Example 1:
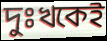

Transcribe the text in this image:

দুঃখকেই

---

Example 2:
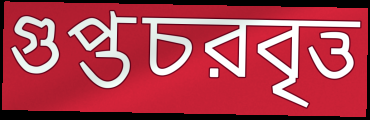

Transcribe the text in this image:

গুপ্তচরবৃত্ত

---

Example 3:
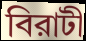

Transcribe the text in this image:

বিরাটী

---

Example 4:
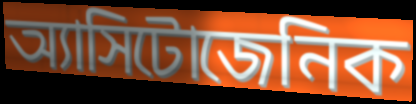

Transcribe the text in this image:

অ্যাসিটোজেনিক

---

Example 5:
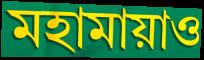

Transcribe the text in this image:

মহামায়াও